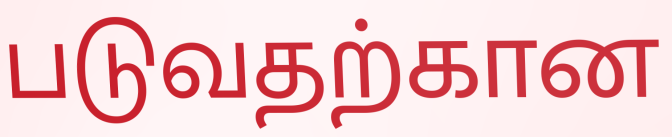
படுவதற்கான